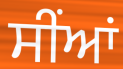
ਸੀਂਆਂ